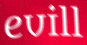
euill